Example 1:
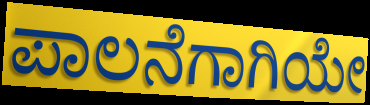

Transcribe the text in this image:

ಪಾಲನೆಗಾಗಿಯೇ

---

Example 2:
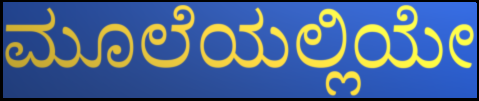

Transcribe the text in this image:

ಮೂಲೆಯಲ್ಲಿಯೇ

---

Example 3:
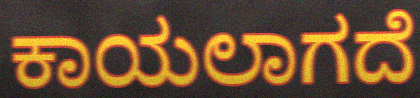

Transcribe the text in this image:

ಕಾಯಲಾಗದೆ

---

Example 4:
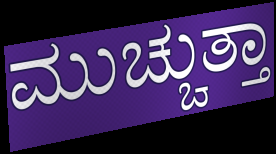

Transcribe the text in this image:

ಮುಚ್ಚುತ್ತಾ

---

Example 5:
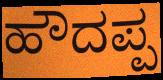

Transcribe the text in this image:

ಹೌದಪ್ಪ